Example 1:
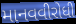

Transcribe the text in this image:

માનવવીરોધી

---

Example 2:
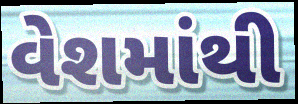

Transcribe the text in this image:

વેશમાંથી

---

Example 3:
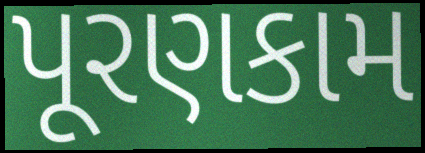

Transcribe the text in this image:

પૂરણકામ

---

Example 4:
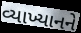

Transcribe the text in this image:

વ્યાખ્યાનને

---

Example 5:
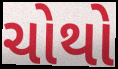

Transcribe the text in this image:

ચોથો